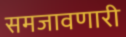
समजावणारी